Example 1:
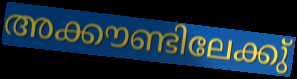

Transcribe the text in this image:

അക്കൗണ്ടിലേക്കു്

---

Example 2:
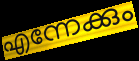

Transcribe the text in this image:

എന്നേക്കും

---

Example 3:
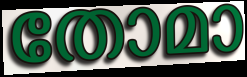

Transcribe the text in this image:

തോമാ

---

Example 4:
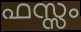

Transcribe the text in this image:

ഫസ്സം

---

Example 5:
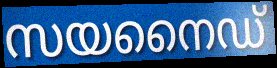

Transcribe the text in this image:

സയനൈഡ്